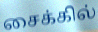
சைக்கில்